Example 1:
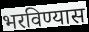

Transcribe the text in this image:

भरविण्यास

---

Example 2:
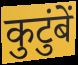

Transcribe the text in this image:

कुटुंबें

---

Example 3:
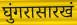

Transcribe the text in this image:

घुंगरासारखं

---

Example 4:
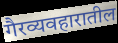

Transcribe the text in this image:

गैरव्यवहारातील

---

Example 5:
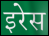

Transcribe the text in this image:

इरेस